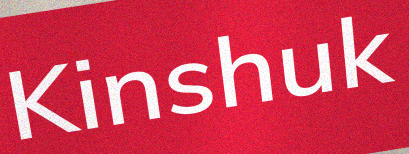
Kinshuk